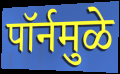
पॉर्नमुळे